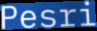
Pesri